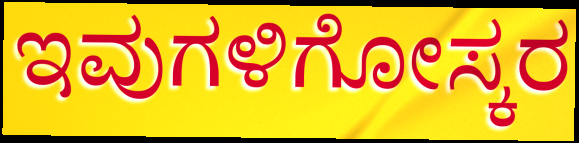
ಇವುಗಳಿಗೋಸ್ಕರ